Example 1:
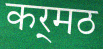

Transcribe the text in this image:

कर्मठ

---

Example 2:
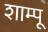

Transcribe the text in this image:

शाम्पू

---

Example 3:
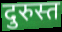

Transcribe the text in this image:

दुरुस्त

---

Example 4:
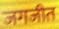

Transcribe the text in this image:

जगजीत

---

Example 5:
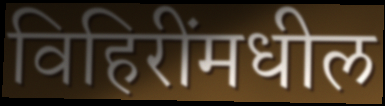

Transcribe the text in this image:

विहिरींमधील